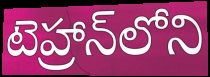
టెహ్రాన్‌లోని